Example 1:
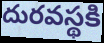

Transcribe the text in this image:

దురవస్థకి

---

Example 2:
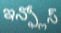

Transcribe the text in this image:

ఇన్ఫ్లోస్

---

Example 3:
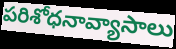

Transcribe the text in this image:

పరిశోధనావ్యాసాలు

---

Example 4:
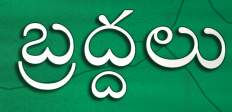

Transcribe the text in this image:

బ్రద్దలు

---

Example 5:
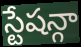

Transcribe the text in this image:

స్టేషన్గా